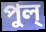
পুল্